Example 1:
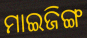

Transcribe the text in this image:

ମାଇଜିଙ୍ଗ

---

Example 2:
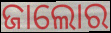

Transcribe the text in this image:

ଜାଲୋର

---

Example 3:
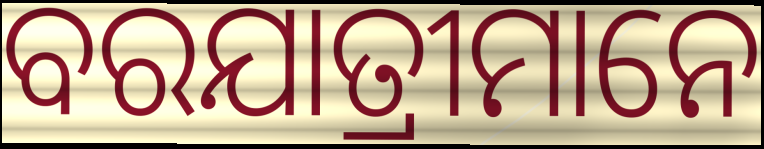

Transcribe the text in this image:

ବରଯାତ୍ରୀମାନେ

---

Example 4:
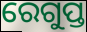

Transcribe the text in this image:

ରେଗୁପ୍ତ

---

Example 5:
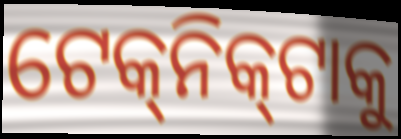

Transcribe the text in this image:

ଟେକ୍‌ନିକ୍‌ଟାକୁ